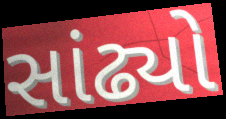
સાંઢ્યો